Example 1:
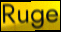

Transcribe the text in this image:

Ruge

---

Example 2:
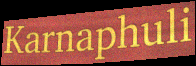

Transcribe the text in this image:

Karnaphuli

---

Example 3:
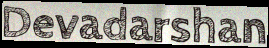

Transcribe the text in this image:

Devadarshan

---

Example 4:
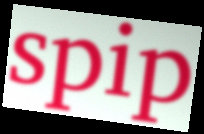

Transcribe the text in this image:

spip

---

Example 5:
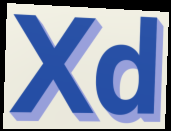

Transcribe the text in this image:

Xd